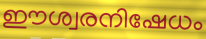
ഈശ്വരനിഷേധം